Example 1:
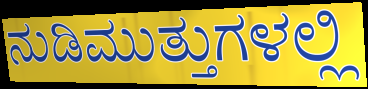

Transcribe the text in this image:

ನುಡಿಮುತ್ತುಗಳಲ್ಲಿ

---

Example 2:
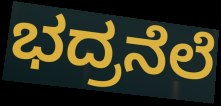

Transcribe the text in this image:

ಭದ್ರನೆಲೆ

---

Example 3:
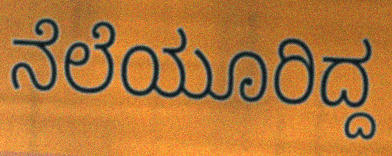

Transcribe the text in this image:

ನೆಲೆಯೂರಿದ್ದ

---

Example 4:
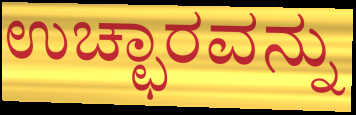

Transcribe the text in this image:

ಉಚ್ಛಾರವನ್ನು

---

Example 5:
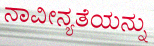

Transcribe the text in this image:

ನಾವೀನ್ಯತೆಯನ್ನು